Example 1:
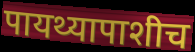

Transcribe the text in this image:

पायथ्यापाशीच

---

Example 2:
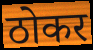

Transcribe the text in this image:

ठोकर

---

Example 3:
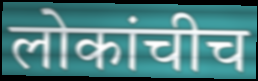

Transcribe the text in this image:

लोकांचीच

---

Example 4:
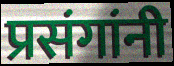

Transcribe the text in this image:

प्रसंगांनी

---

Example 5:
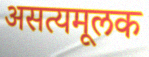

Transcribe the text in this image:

असत्यमूलक